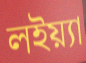
লইয়্যা